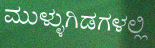
ಮುಳ್ಳುಗಿಡಗಳಲ್ಲಿ